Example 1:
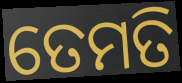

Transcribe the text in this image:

ତେମତି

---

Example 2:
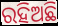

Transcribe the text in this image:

ରହିଅଛି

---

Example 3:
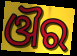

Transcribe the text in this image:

ଔର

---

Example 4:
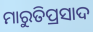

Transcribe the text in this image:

ମାରୁତିପ୍ରସାଦ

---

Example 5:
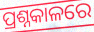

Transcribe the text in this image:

ପ୍ରଶ୍ନକାଳରେ